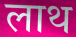
लाथ